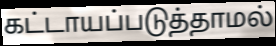
கட்டாயப்படுத்தாமல்